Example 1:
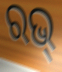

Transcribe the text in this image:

ରଭ୍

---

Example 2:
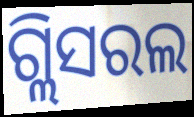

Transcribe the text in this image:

ଗ୍ଲିସରଲ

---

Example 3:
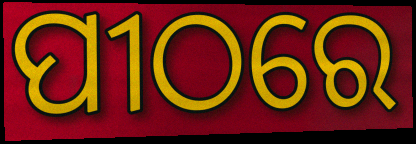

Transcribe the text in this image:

ପୀଠରେ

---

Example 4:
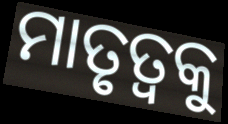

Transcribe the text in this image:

ମାତୃତ୍ବକୁ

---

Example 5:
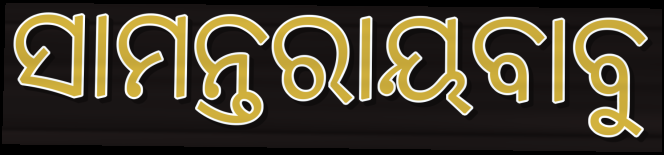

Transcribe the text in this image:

ସାମନ୍ତରାୟବାବୁ